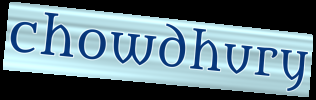
chowdhury